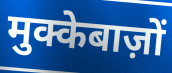
मुक्केबाज़ों